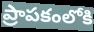
ప్రాపకంలోకి